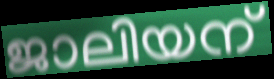
ജാലിയന്